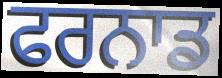
ਫਰਨਾਡ